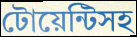
টোয়েন্টিসহ